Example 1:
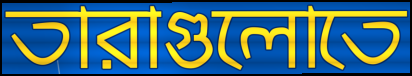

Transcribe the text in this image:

তারাগুলোতে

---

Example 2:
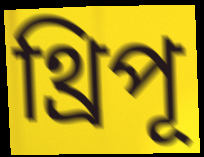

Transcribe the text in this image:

থ্রিপূ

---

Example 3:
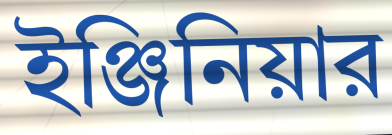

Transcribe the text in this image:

ইঞ্জিনিয়ার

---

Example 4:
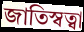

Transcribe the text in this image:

জাতিস্বত্বা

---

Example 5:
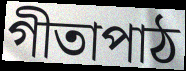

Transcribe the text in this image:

গীতাপাঠ